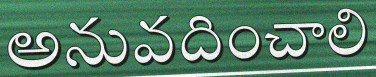
అనువదించాలి